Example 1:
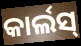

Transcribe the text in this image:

କାର୍ଲସ୍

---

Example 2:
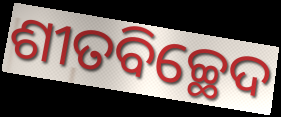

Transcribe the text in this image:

ଶୀତବିଚ୍ଛେଦ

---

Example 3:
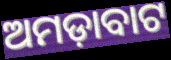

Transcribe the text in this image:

ଅମଡ଼ାବାଟ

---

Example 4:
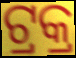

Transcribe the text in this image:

ଟ୍ରକ୍ର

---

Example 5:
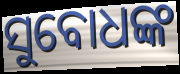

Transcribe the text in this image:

ସୁବୋଧଙ୍କ